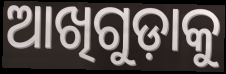
ଆଖିଗୁଡ଼ାକୁ